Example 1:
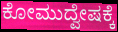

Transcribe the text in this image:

ಕೋಮುದ್ವೇಷಕ್ಕೆ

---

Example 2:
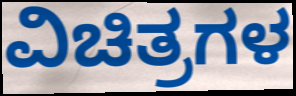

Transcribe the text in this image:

ವಿಚಿತ್ರಗಳ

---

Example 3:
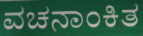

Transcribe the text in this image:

ವಚನಾಂಕಿತ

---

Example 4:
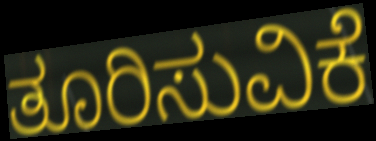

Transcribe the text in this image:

ತೂರಿಸುವಿಕೆ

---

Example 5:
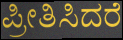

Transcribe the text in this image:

ಪ್ರೀತಿಸಿದರೆ